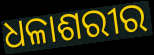
ଧଳାଶରୀର